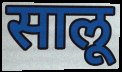
सालू